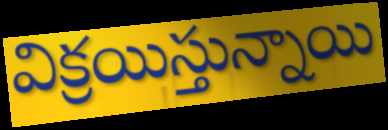
విక్రయిస్తున్నాయి